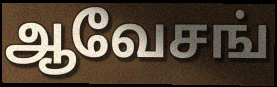
ஆவேசங்